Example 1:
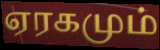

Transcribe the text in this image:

ஏரகமும்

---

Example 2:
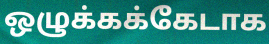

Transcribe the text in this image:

ஒழுக்கக்கேடாக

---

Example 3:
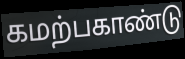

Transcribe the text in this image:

கமற்பகாண்டு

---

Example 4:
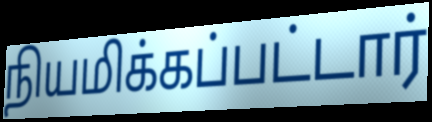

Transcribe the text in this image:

நியமிக்கப்பட்டார்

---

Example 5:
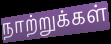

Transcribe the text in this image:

நாற்றுக்கள்